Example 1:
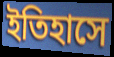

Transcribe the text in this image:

ইতিহাসে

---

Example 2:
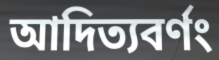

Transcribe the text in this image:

আদিত্যবর্ণং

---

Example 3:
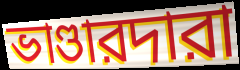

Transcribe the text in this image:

ভাণ্ডারদারা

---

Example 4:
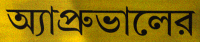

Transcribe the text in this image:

অ্যাপ্রুভালের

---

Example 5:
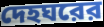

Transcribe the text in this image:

দেহঘরের